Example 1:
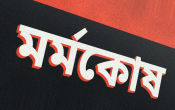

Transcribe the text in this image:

মর্মকোষ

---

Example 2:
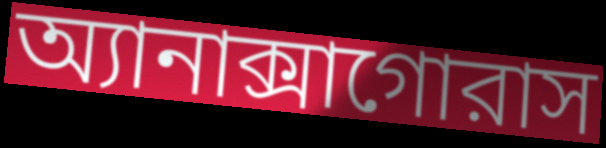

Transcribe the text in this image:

অ্যানাক্সাগোরাস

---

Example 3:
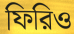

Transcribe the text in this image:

ফিরিও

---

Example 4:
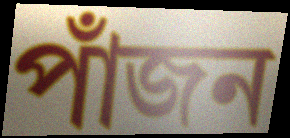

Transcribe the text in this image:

পাঁজন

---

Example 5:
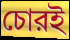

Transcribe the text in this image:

চোরই